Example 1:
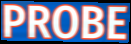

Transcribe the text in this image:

PROBE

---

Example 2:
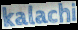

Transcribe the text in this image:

kalachi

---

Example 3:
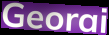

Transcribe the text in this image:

Georai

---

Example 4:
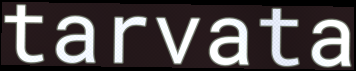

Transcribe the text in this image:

tarvata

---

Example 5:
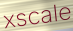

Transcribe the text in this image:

xscale